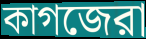
কাগজেরা